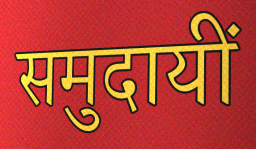
समुदायीं